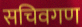
सचिवगण